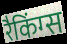
रैकिंग्स